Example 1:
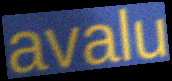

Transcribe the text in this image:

avalu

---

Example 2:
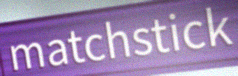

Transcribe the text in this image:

matchstick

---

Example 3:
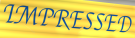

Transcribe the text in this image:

IMPRESSED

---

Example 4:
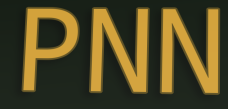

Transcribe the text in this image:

PNN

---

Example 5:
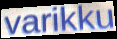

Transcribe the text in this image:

varikku